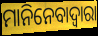
ମାନିନେବାଦ୍ୱାରା